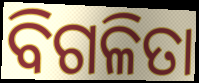
ବିଗଳିତା